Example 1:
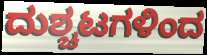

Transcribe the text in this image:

ದುಶ್ಚಟಗಳಿಂದ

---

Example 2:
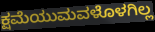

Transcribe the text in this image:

ಕ್ಷಮೆಯುಮವಳೊಳಗಿಲ್ಲ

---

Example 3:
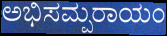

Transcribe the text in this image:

ಅಭಿಸಮ್ಪರಾಯಂ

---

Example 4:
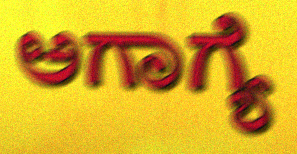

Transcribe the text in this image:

ಅಗಾಗ್ಯೆ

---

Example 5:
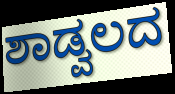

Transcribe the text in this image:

ಶಾಡ್ವಲದ